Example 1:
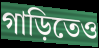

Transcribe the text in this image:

গাড়িতেও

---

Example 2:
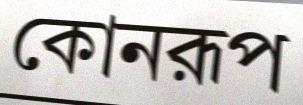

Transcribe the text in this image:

কোনরূপ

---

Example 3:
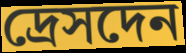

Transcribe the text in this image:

দ্রেসদেন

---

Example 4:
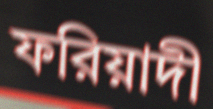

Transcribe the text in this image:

ফরিয়াদী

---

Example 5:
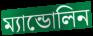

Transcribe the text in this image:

ম্যান্ডোলিন